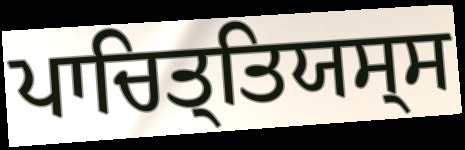
ਪਾਚਿਤ੍ਤਿਯਸ੍ਸ